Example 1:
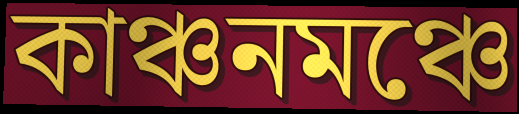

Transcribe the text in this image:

কাঞ্চনমঞ্চে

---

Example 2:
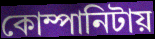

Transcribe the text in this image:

কোম্পানিটায়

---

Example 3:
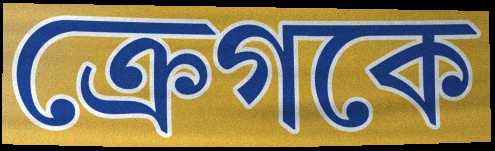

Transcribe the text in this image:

ক্রেগকে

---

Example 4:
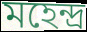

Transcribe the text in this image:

মহেন্দ্র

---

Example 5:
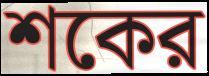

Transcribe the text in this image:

শকের